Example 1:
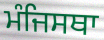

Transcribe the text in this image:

ਮੰਜਿਸਥਾ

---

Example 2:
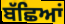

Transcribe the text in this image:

ਬੱਛਿਆਂ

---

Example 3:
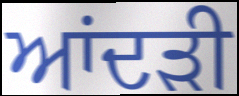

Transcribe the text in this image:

ਆਂਦੜੀ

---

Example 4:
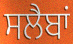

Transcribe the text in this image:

ਸਲੈਬਾਂ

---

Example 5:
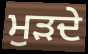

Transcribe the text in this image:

ਮੁਡ਼ਦੇ